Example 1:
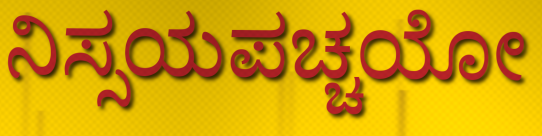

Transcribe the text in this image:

ನಿಸ್ಸಯಪಚ್ಚಯೋ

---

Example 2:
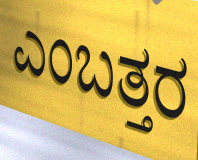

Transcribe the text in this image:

ಎಂಬತ್ತರ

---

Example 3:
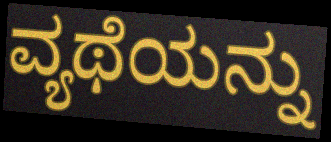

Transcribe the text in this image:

ವ್ಯಥೆಯನ್ನು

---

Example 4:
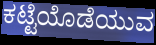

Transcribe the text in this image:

ಕಟ್ಟೆಯೊಡೆಯುವ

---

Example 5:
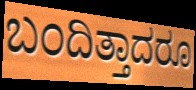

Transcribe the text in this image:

ಬಂದಿತ್ತಾದರೂ